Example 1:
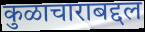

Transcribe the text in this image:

कुळाचाराबद्दल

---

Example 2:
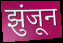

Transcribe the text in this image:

झुंजून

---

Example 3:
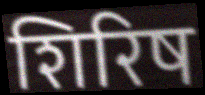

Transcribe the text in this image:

शिरिष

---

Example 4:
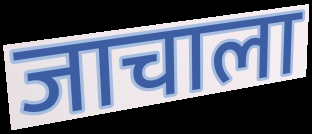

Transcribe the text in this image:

जाचाला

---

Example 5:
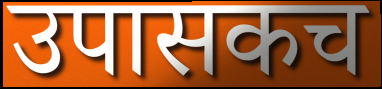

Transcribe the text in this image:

उपासकच